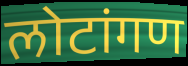
लोटांगण